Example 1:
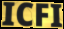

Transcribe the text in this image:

ICFI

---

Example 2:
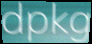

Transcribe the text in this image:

dpkg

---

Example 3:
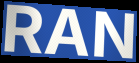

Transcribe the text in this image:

RAN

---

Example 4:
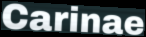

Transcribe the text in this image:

Carinae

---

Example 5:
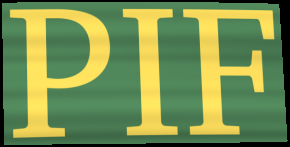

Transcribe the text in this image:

PIF